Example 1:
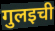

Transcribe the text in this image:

गुलइची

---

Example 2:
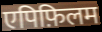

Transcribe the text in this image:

एपिफ़िलम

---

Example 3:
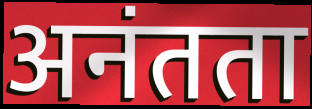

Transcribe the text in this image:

अनंतता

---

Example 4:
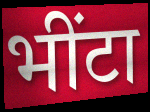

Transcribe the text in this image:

भींटा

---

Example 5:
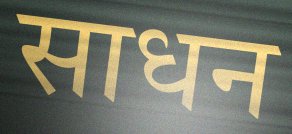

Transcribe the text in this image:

साधन